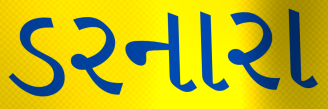
ડરનારા